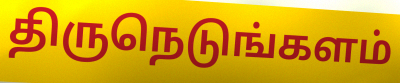
திருநெடுங்களம்